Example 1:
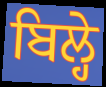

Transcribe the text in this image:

ਬਿਲ੍ਹੇ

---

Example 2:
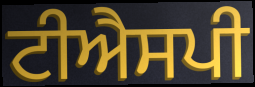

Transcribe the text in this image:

ਟੀਐਸਪੀ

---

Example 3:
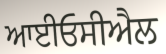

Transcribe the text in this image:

ਆਈਓਸੀਐਲ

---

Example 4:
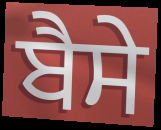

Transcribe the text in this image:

ਬੈਸੇ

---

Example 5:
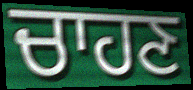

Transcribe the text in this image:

ਚਾਹਣ